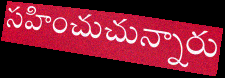
సహించుచున్నారు